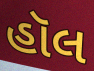
હૉલ